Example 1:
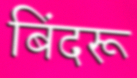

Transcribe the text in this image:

बिंदरू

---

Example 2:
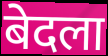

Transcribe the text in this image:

बेदला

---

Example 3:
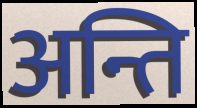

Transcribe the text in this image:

अन्ति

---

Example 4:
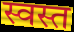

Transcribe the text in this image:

स्वस्त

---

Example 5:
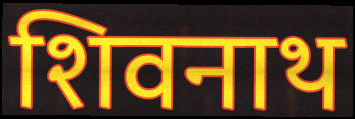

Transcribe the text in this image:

शिवनाथ